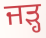
ਜੜ੍ਹ